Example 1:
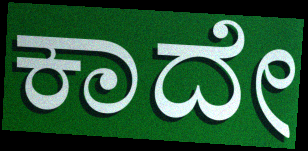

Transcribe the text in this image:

ಕಾದೇ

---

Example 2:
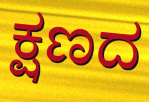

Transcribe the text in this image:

ಕ್ಷಣದ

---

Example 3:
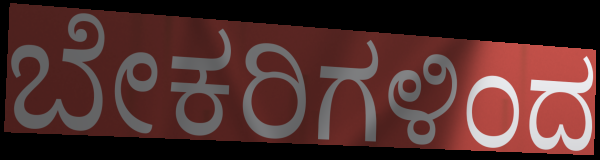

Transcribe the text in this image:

ಬೇಕರಿಗಳಿಂದ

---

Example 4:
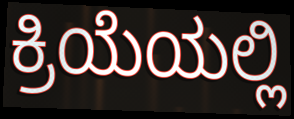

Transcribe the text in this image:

ಕ್ರಿಯೆಯಲ್ಲಿ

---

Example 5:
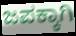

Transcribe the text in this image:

ಜಪಕ್ಕಾಗಿ